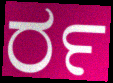
ರ್ರ